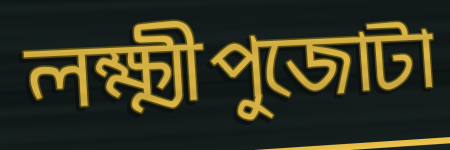
লক্ষ্মীপুজোটা